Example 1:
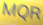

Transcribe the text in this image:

MQR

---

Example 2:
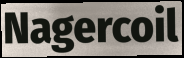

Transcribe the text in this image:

Nagercoil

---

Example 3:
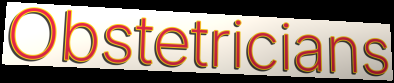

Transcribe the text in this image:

Obstetricians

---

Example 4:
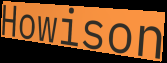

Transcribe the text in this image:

Howison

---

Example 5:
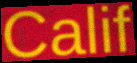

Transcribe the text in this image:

Calif